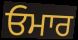
ਓਮਾਰ